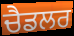
ਚੈਡਲਰ